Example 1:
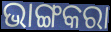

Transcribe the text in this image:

ଭାଙ୍ଗକରା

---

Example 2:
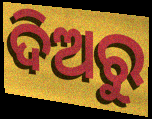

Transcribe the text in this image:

ଦିଅରୁ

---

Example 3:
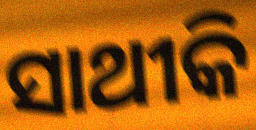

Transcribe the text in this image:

ସାଥୀକି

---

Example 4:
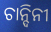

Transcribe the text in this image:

ଚାନ୍ଦିନୀ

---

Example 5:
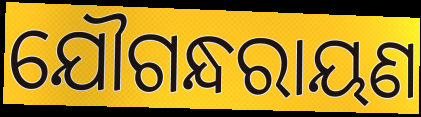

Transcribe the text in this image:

ଯୌଗନ୍ଧରାୟଣ